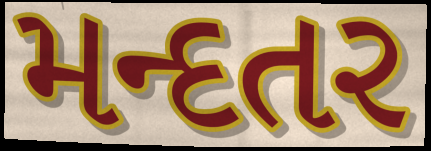
મન્દતર